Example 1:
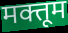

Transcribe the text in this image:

मक्तूम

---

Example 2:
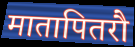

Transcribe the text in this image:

मातापितरौ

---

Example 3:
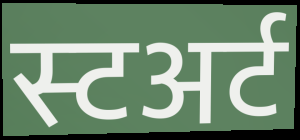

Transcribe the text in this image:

स्टअर्ट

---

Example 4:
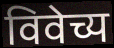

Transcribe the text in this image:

विवेच्य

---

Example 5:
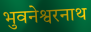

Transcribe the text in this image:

भुवनेश्वरनाथ